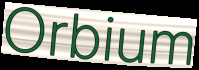
Orbium